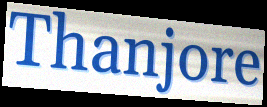
Thanjore